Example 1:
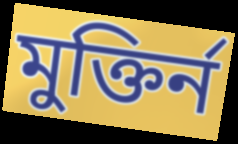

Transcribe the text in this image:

মুক্তির্ন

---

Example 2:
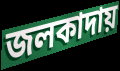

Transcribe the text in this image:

জলকাদায়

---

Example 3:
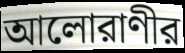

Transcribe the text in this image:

আলোরাণীর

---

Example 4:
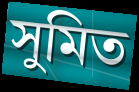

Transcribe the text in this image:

সুমিত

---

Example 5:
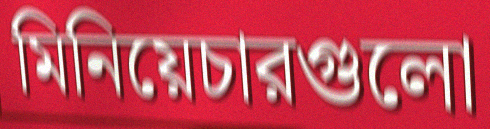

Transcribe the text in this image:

মিনিয়েচারগুলো